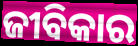
ଜୀବିକାର